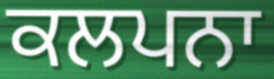
ਕਲਪਨਾ